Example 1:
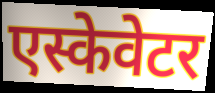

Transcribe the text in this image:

एस्केवेटर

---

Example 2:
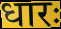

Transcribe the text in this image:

धारः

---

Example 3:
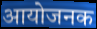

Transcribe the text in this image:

आयोजनक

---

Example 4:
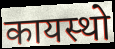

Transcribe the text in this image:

कायस्थो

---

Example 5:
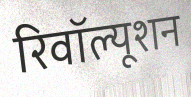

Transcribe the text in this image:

रिवॉल्यूशन